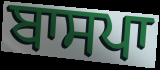
ਬਾਸਪਾ